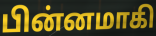
பின்னமாகி